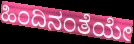
ಹಿಂದಿನಂತೆಯೇ